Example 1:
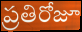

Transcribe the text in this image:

ప్రతిరోజూ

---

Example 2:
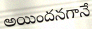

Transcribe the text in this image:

అయిందనగానే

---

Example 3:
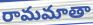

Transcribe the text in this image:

రామమాతా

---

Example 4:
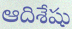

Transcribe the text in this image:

ఆదిశేషు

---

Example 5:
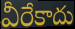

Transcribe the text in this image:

వీరేకాదు